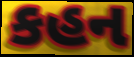
કહન